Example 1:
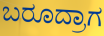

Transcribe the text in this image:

ಬರೂದ್ರಾಗ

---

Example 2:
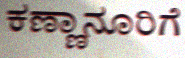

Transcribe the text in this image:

ಕಣ್ಣಾನೂರಿಗೆ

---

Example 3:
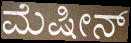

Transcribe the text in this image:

ಮೆಷೀನ್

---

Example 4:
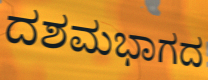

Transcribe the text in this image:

ದಶಮಭಾಗದ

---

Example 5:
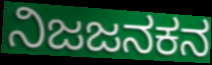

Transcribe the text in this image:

ನಿಜಜನಕನ